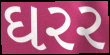
ઘરર